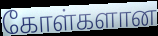
கோள்களான